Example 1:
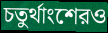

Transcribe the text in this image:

চতুর্থাংশেরও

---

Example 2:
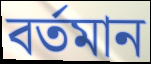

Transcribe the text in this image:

বর্তমান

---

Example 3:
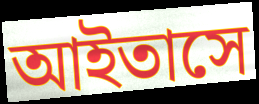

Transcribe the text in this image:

আইতাসে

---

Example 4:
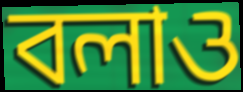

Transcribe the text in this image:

বলাও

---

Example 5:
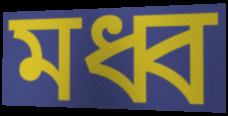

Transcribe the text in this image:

মধ্ব